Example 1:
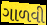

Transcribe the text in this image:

ગાળવી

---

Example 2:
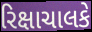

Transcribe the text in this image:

રિક્ષાચાલકે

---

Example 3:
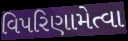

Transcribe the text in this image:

વિપરિણામેત્વા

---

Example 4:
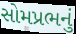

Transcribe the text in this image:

સોમપ્રભનું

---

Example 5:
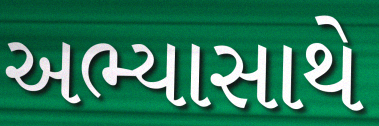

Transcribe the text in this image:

અભ્યાસાથે